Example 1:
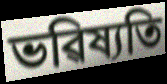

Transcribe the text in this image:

ভৱিষ্যতি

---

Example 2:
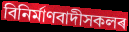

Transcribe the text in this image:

বিনিৰ্মাণবাদীসকলৰ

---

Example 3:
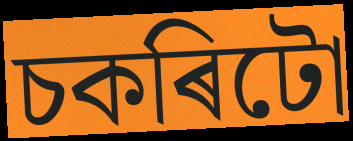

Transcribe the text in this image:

চকৰিটো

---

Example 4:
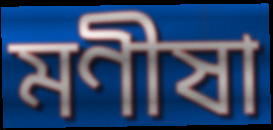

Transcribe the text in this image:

মণীষা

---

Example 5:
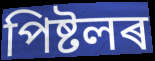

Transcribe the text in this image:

পিষ্টলৰ